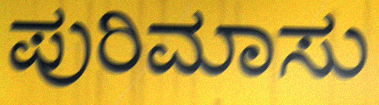
ಪುರಿಮಾಸು